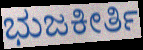
ಭುಜಕೀರ್ತಿ